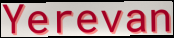
Yerevan